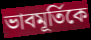
ভাবমূর্তিকে